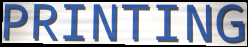
PRINTING